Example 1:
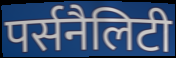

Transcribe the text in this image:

पर्सनैलिटी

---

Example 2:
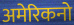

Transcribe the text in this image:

अमेरिकनो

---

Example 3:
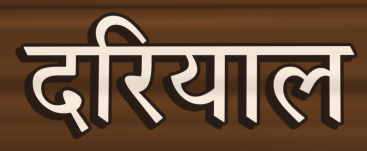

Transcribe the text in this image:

दरियाल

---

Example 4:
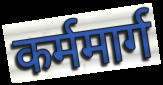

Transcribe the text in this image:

कर्ममार्ग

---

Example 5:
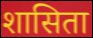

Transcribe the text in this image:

शासिता